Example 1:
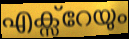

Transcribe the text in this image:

എക്സ്റേയും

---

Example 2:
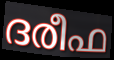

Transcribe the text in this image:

ദരീഫ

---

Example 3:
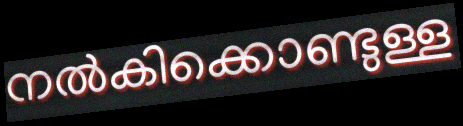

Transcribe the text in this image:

നൽകിക്കൊണ്ടുള്ള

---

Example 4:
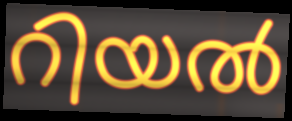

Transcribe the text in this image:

റിയൽ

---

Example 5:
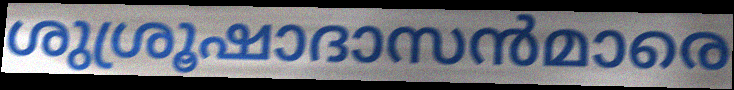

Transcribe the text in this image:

ശുശ്രൂഷാദാസൻമാരെ